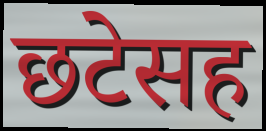
छटेसह